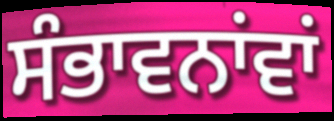
ਸੰਭਾਵਨਾਂਵਾਂ